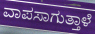
ವಾಪಸಾಗುತ್ತಾಳೆ